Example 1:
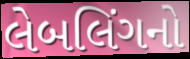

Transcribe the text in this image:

લેબલિંગનો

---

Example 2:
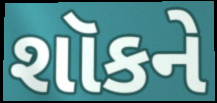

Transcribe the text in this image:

શૉકને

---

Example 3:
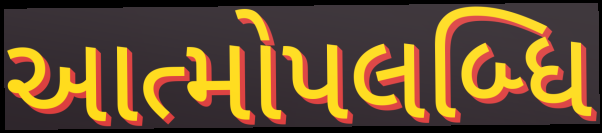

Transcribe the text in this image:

આત્મોપલબ્ધિ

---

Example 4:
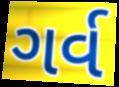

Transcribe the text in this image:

ગર્વ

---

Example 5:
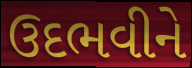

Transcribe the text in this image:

ઉદભવીને